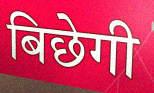
बिछेगी